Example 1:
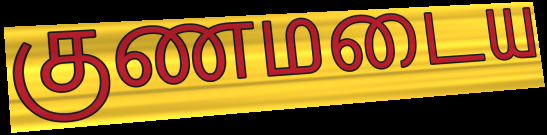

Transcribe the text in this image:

குணமடைய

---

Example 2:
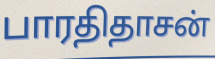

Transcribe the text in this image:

பாரதிதாசன்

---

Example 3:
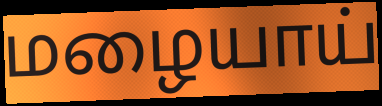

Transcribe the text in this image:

மழையாய்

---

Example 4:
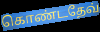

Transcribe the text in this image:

கொண்டதேவ்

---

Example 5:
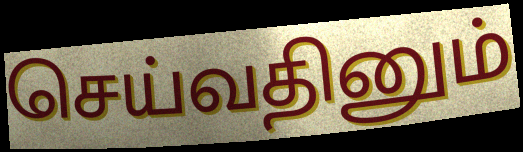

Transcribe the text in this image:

செய்வதினும்